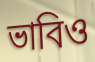
ভাবিও